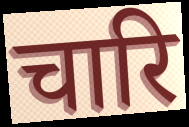
चारि